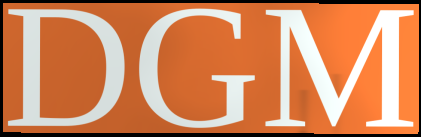
DGM